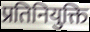
प्रतिनियुक्ति